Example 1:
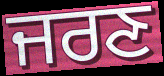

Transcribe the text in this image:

ਜਰਣ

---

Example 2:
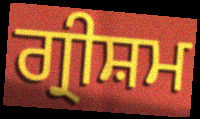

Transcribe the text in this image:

ਗ੍ਰੀਸ਼ਮ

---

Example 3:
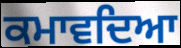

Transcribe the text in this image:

ਕਮਾਵਦਿਆ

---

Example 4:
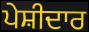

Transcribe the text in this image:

ਪੇਸ਼ੀਦਾਰ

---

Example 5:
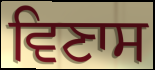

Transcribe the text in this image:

ਵਿਣਾਸ